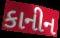
કાનીન